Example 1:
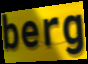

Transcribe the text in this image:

berg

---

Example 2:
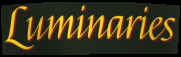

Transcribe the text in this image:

Luminaries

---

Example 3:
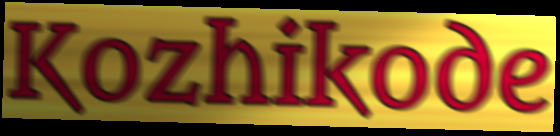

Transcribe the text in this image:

Kozhikode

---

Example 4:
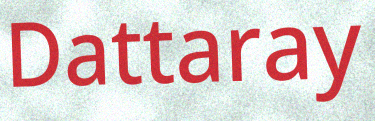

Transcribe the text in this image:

Dattaray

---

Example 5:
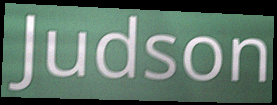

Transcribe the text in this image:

Judson